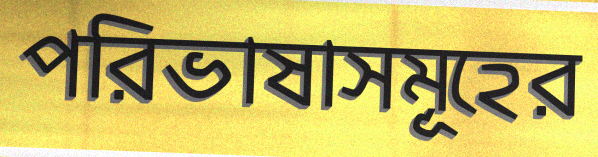
পরিভাষাসমূহের